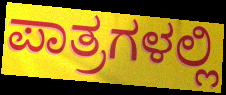
ಪಾತ್ರಗಳಲ್ಲಿ